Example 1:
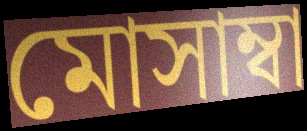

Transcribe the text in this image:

মোসাম্বা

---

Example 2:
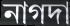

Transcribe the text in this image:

নাগদা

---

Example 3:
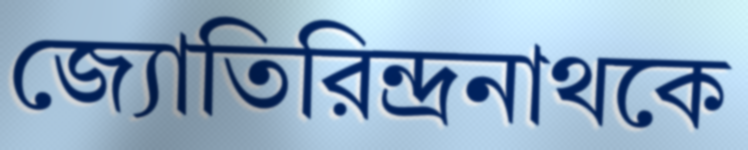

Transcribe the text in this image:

জ্যোতিরিন্দ্রনাথকে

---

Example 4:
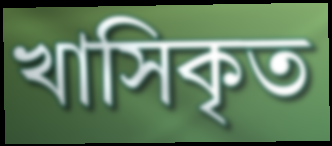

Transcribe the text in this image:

খাসিকৃত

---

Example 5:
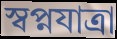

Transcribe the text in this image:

স্বপ্নযাত্রা